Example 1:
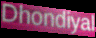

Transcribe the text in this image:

Dhondiyal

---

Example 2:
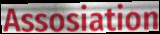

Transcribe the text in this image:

Assosiation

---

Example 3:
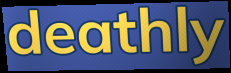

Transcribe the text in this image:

deathly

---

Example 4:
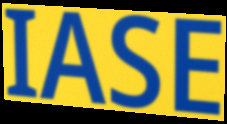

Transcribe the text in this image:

IASE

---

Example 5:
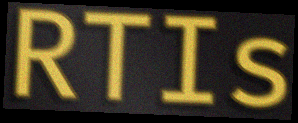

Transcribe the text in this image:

RTIs